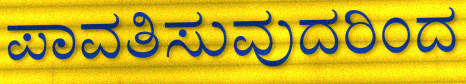
ಪಾವತಿಸುವುದರಿಂದ